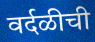
वर्दळीची